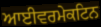
ਆਈਵਰਮੇਕਟਿਨ